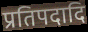
प्रतिपदादि